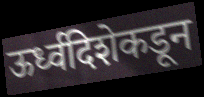
ऊर्ध्वदिशेकडून